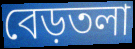
বেড়তলা